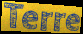
Terre